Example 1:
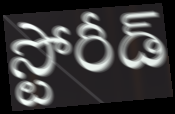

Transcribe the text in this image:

స్టోరీడ్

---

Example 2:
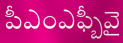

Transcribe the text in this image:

పీఎంఎఫ్బీవై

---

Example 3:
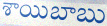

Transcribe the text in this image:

శాయిబాబు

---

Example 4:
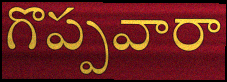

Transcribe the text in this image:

గొప్పవారా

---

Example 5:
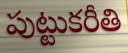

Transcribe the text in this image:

పుట్టుకరీతి